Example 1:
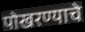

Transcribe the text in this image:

पोखरण्याचे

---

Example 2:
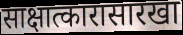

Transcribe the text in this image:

साक्षात्कारासारखा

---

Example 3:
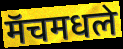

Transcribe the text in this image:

मॅचमधले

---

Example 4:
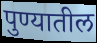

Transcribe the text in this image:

पुण्यातील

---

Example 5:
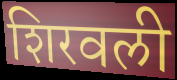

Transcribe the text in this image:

शिरवली